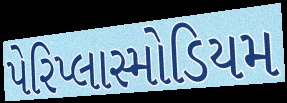
પેરિપ્લાસ્મોડિયમ